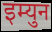
इम्‍युन